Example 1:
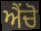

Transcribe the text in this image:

ਐਂਚੋ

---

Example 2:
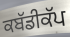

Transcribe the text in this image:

ਕਬੱਡੀਕੱਪ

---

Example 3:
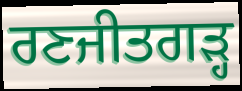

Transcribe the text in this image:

ਰਣਜੀਤਗੜ੍ਹ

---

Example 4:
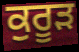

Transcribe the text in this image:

ਕੁਰੂੜ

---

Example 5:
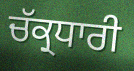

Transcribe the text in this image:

ਚੱਕ੍ਰਧਾਰੀ